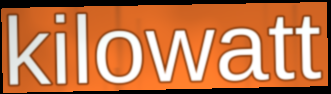
kilowatt